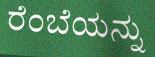
ರೆಂಬೆಯನ್ನು